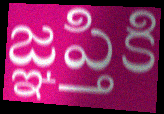
జ్ఞప్తికి